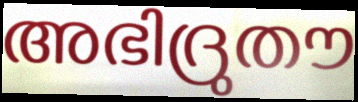
അഭിദ്രുതൗ